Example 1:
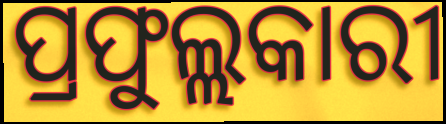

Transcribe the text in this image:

ପ୍ରଫୁଲ୍ଲକାରୀ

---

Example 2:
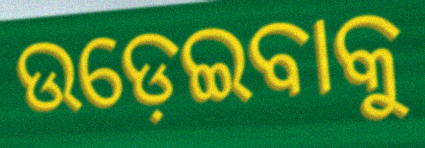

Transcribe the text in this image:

ଉଡ଼େଇବାକୁ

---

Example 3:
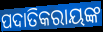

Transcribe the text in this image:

ପଦାତିକରାୟଙ୍କ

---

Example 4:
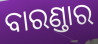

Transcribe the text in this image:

ବାରଣ୍ଡାର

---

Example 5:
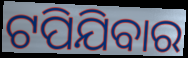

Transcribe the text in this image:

ଟପିଯିବାର